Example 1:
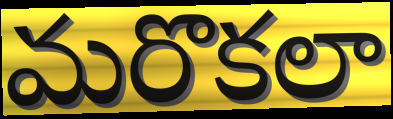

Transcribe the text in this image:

మరొకలా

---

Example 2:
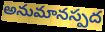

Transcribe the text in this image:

అనుమానస్పద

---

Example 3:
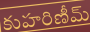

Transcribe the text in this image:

కుహరిణీమ్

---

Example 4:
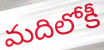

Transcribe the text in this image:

మదిలోకీ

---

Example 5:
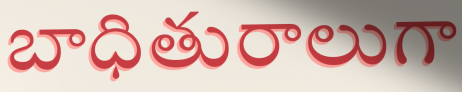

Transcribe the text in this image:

బాధితురాలుగా